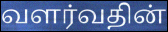
வளர்வதின்